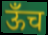
ऊँच